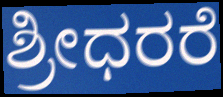
ಶ್ರೀಧರರೆ